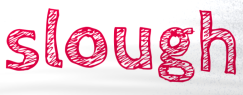
slough